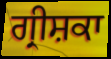
ਗ੍ਰੀਸ਼ਕਾ